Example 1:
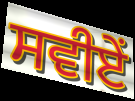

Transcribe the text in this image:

ਸਵੀਏਂ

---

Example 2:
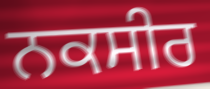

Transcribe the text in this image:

ਨਕਸੀਰ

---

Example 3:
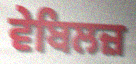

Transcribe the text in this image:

ਵੇਬਿਲਜ਼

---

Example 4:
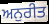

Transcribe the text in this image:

ਅਨੁਰੀਤ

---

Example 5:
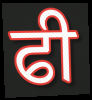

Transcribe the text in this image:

ਫੀ